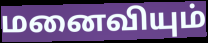
மனைவியும்